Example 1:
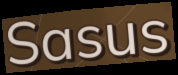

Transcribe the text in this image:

Sasus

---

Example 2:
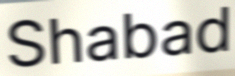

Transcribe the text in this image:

Shabad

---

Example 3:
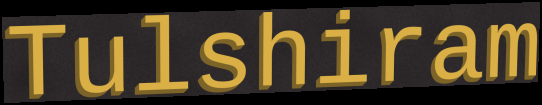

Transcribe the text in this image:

Tulshiram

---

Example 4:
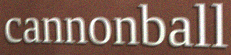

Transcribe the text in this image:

cannonball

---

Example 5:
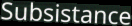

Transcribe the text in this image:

Subsistance